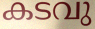
കടവു